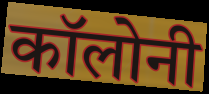
कॉलोनी